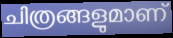
ചിത്രങ്ങളുമാണ്